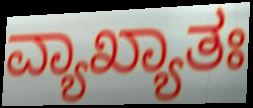
ವ್ಯಾಖ್ಯಾತಃ